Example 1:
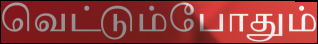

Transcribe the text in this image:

வெட்டும்போதும்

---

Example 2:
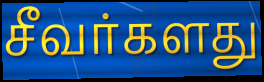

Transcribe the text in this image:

சீவர்களது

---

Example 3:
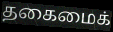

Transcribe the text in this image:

தகைமைக்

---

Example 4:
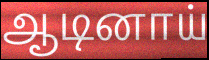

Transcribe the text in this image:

ஆடினாய்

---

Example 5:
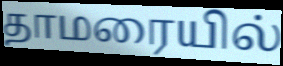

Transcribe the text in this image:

தாமரையில்